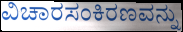
ವಿಚಾರಸಂಕಿರಣವನ್ನು